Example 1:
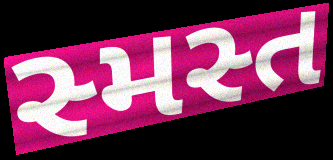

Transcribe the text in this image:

સ્મસ્ત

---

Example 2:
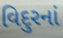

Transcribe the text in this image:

વિદુરનાં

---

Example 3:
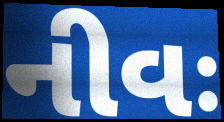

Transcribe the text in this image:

નીવઃ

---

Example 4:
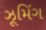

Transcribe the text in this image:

ઝૂમિંગ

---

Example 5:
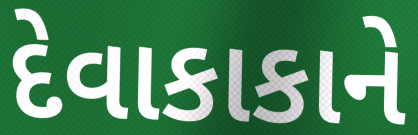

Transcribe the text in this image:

દેવાકાકાને